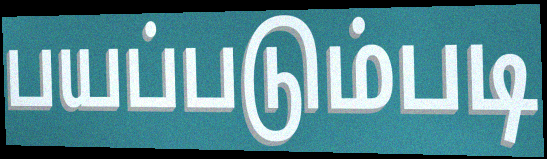
பயப்படும்படி